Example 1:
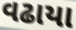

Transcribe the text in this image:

વઢાયા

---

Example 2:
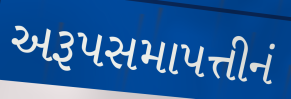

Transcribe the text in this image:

અરૂપસમાપત્તીનં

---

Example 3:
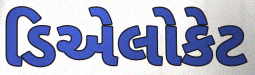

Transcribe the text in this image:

ડિએલોકેટ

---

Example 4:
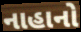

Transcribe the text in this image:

નાહાનો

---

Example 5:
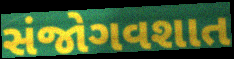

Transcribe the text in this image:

સંજોગવશાત